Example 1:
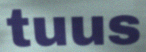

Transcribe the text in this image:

tuus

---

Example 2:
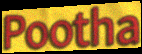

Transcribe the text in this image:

Pootha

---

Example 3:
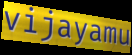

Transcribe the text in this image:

vijayamu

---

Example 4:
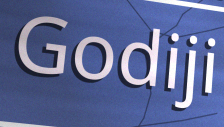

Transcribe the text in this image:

Godiji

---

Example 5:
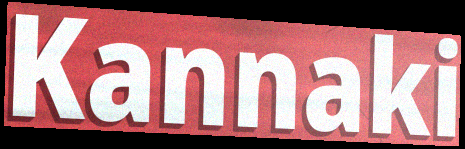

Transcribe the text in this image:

Kannaki